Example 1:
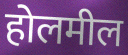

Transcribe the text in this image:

होलमील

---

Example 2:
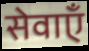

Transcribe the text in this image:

सेवाएँ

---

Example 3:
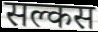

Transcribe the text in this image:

सल्कस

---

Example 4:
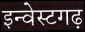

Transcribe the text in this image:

इन्वेस्टगढ़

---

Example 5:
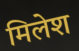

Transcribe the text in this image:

मिलेश